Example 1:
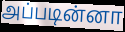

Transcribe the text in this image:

அப்படின்னா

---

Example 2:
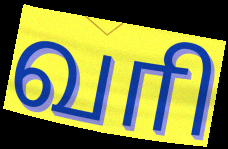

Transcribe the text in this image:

வரி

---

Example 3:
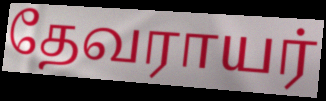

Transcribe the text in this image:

தேவராயர்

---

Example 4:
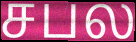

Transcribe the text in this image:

சபல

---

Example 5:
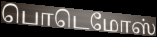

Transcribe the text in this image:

பொடெமோஸ்